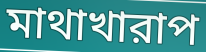
মাথাখারাপ